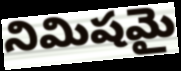
నిమిషమై